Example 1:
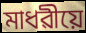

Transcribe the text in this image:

মাধৱীয়ে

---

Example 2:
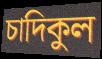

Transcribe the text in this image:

চাদিকুল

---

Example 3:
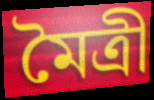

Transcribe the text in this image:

মৈত্ৰী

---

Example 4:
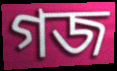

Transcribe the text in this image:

গজ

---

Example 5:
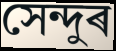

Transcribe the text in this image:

সেন্দুৰ